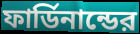
ফার্ডিনান্ডের